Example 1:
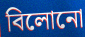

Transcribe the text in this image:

বিলোনো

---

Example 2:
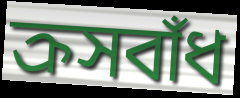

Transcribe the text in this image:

ক্রসবাঁধ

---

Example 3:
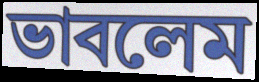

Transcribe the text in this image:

ভাবলেম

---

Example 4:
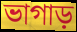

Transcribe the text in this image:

ভাগাড়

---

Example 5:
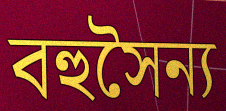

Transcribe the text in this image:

বহুসৈন্য